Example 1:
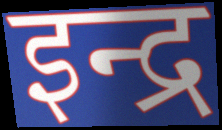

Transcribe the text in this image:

इन्द्र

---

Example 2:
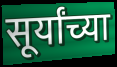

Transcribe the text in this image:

सूर्यांच्या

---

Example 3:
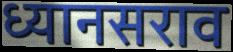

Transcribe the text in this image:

ध्यानसराव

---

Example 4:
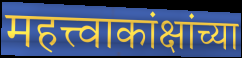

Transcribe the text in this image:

महत्त्वाकांक्षांच्या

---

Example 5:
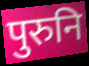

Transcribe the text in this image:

पुरुनि